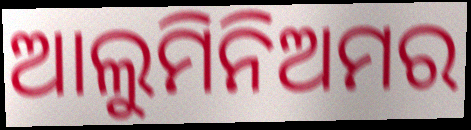
ଆଲୁମିନିଅମର